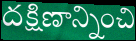
దక్షిణాన్నించి